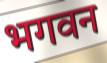
भगवन